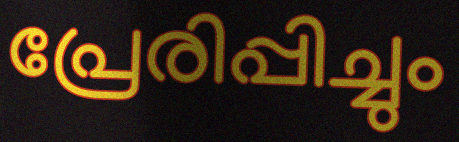
പ്രേരിപ്പിച്ചും